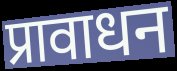
प्रावाधन